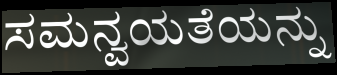
ಸಮನ್ವಯತೆಯನ್ನು